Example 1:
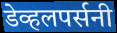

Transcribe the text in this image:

डेव्हलपर्सनी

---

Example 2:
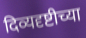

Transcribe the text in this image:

दिव्यदृष्टीच्या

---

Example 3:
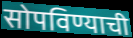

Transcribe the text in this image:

सोपविण्याची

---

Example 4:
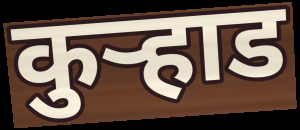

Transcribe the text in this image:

कुऱ्हाड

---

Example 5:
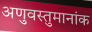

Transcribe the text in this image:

अणुवस्तुमानांक